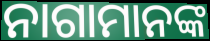
ନାଗାମାନଙ୍କ